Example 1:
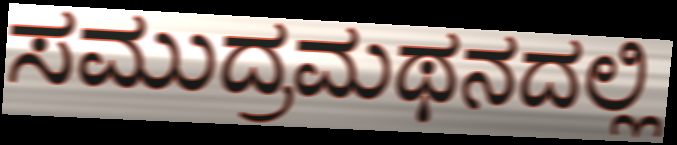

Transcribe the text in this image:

ಸಮುದ್ರಮಥನದಲ್ಲಿ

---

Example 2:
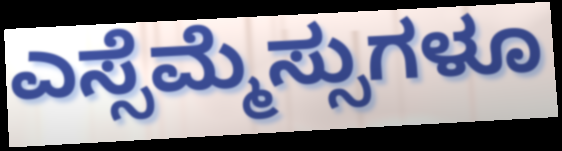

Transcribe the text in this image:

ಎಸ್ಸೆಮ್ಮೆಸ್ಸುಗಳೂ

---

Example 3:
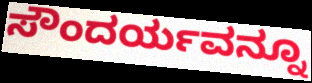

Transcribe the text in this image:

ಸೌಂದರ್ಯವನ್ನೂ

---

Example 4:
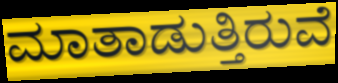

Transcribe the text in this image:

ಮಾತಾಡುತ್ತಿರುವೆ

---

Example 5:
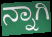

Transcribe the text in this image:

ನ್ನಾಗಿ